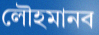
লৌহমানব